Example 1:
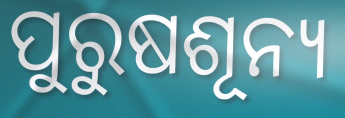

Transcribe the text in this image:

ପୁରୁଷଶୂନ୍ୟ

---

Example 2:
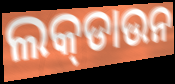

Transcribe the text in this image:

ଲକ୍‌ଡାଉନ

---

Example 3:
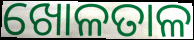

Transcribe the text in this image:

ଖୋଳତାଳ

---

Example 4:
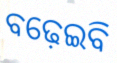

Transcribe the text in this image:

ବଢ଼େଇବି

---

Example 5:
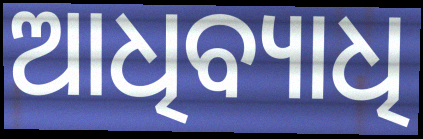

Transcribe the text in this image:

ଆଧିବ୍ୟାଧି